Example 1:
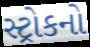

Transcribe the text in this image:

સ્ટ્રોકનો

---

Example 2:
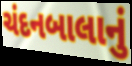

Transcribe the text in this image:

ચંદનબાલાનું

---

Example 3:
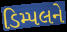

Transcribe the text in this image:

ડિમ્પલને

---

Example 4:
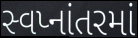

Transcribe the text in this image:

સ્વપ્નાંતરમાં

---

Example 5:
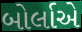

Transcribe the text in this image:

બોર્લાએ